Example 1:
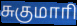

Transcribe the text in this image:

சுகுமாரி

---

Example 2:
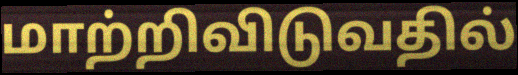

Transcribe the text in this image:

மாற்றிவிடுவதில்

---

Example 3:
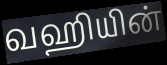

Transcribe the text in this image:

வஹியின்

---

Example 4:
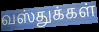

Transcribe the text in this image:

வஸ்துக்கள்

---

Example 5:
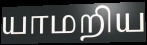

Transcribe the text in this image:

யாமறிய